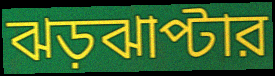
ঝড়ঝাপ্টার